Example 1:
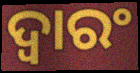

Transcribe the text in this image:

ଦ୍ୱାରଂ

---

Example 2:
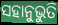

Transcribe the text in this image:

ସହାନୁଭୁତି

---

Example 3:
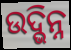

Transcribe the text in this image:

ଉଦ୍ଭିନ୍ନ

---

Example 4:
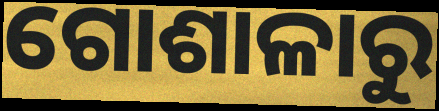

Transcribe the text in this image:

ଗୋଶାଳାରୁ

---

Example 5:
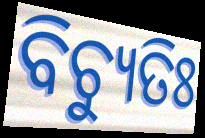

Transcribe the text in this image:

ବିଚ୍ୟୁତିଃ